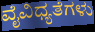
ವೈವಿಧ್ಯತೆಗಳು